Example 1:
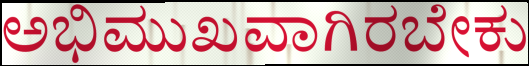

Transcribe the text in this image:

ಅಭಿಮುಖವಾಗಿರಬೇಕು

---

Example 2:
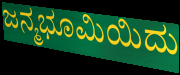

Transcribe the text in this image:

ಜನ್ಮಭೂಮಿಯಿದು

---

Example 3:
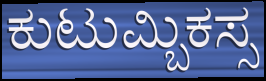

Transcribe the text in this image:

ಕುಟುಮ್ಬಿಕಸ್ಸ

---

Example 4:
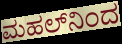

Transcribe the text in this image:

ಮಹಲ್‌ನಿಂದ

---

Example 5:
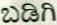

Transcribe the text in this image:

ಬಡಿಗಿ